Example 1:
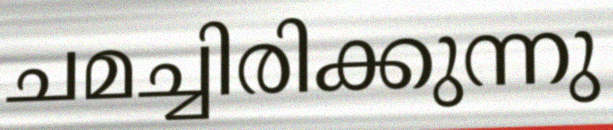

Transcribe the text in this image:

ചമച്ചിരിക്കുന്നു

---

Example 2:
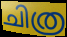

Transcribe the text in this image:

ചിത്ര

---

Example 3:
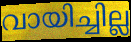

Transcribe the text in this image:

വായിച്ചില്ല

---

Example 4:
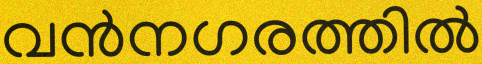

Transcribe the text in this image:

വൻനഗരത്തിൽ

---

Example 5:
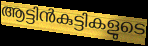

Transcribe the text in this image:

ആട്ടിൻകുട്ടികളുടെ